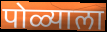
पोळ्याला